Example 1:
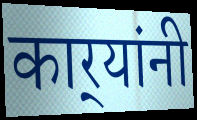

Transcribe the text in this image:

कार्यांनी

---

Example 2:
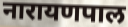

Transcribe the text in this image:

नारायणपाल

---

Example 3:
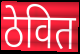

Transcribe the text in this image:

ठेवित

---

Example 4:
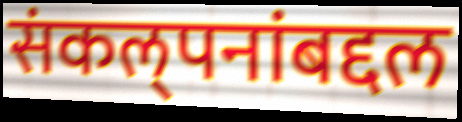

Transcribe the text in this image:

संकल्पनांबद्दल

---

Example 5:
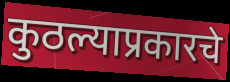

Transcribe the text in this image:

कुठल्याप्रकारचे